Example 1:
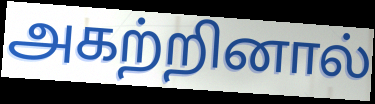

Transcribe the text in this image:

அகற்றினால்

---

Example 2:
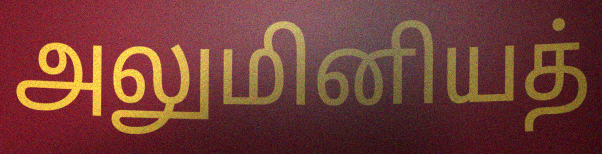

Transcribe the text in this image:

அலுமினியத்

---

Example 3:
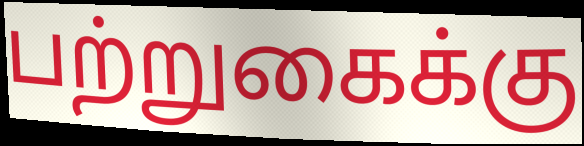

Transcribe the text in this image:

பற்றுகைக்கு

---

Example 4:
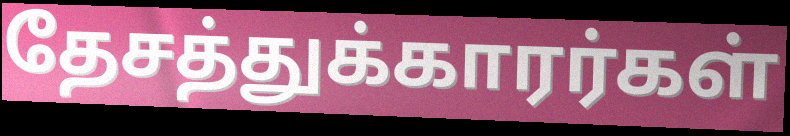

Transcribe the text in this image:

தேசத்துக்காரர்கள்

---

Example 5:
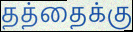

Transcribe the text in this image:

தத்தைக்கு